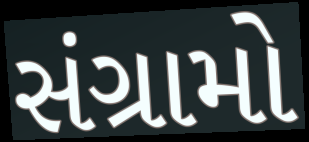
સંગ્રામો